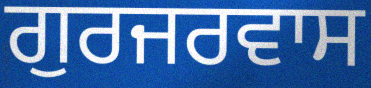
ਗੁਰਜਰਵਾਸ